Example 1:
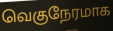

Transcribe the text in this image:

வெகுநேரமாக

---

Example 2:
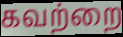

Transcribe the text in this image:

கவற்றை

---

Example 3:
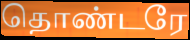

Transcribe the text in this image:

தொண்டரே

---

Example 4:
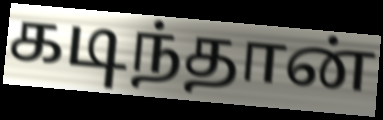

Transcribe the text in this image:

கடிந்தான்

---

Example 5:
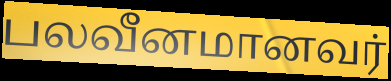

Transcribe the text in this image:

பலவீனமானவர்